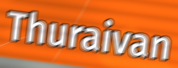
Thuraivan